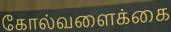
கோல்வளைக்கை